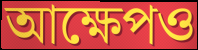
আক্ষেপও